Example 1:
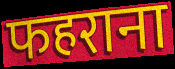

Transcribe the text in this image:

फहराना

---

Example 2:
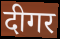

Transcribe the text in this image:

दीगर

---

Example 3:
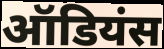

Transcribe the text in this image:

ऑडियंस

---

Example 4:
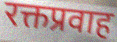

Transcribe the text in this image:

रक्तप्रवाह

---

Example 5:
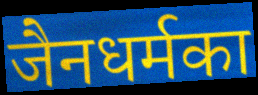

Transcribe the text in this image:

जैनधर्मका